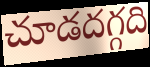
చూడదగ్గది